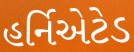
હર્નિએટેડ